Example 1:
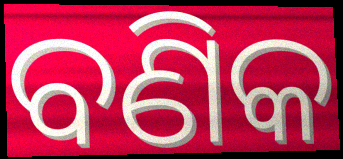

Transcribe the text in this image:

ବଣିକ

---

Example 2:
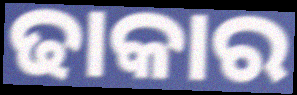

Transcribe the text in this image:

ଢାକାର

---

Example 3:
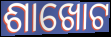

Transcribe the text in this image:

ଶାଖୋଟ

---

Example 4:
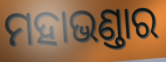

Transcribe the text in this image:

ମହାଭଣ୍ଡାର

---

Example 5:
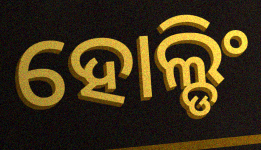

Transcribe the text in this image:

ହୋଲ୍ଡିଂ